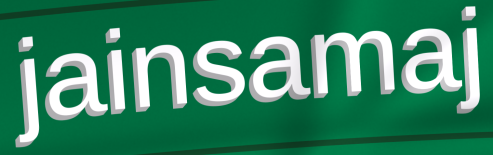
jainsamaj